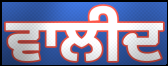
ਵਾਲੀਦ